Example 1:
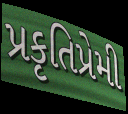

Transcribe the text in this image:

પ્રકૃતિપ્રેમી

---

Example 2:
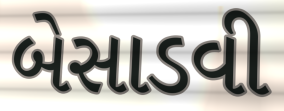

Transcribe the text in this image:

બેસાડવી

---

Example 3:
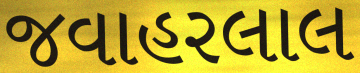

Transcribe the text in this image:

જવાહરલાલ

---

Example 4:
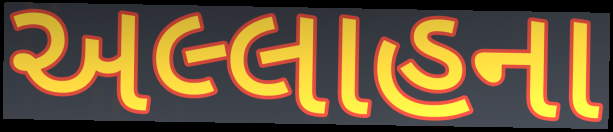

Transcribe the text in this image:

અલ્લાહના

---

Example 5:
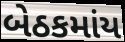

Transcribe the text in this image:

બેઠકમાંય